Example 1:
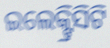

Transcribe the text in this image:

ଇଲେକ୍ଟ୍ରିସିଟି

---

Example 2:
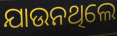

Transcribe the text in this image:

ଯାଉନଥିଲେ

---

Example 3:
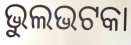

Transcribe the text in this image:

ଭୁଲଭଟକା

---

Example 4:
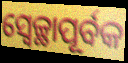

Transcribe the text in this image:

ସ୍ଵେଚ୍ଛାପୂର୍ବକ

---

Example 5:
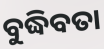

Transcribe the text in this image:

ବୁଦ୍ଧିବତା